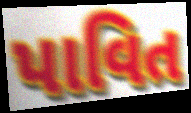
પાવિત